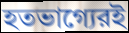
হতভাগ্যেরই